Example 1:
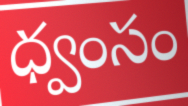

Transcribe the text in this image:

ధ్వంసం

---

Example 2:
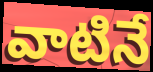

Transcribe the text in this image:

వాటినే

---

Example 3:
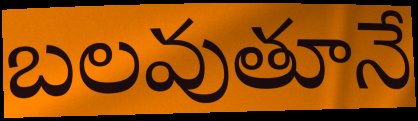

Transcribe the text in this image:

బలవుతూనే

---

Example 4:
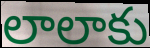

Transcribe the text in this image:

లాలాకు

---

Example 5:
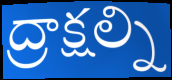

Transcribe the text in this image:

ద్రాక్షల్ని